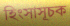
হিংসাসূচক